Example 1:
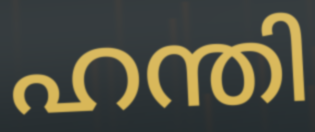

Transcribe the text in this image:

ഹന്തി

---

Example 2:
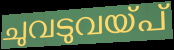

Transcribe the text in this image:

ചുവടുവയ്പ്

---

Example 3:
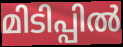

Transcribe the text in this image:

മിടിപ്പിൽ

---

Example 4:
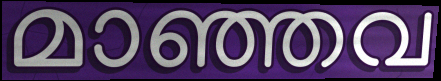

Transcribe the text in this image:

മാഞ്ഞവ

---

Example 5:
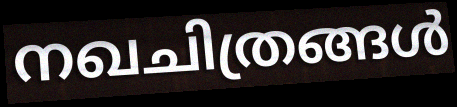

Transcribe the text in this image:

നഖചിത്രങ്ങൾ